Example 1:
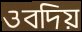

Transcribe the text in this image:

ওবদিয়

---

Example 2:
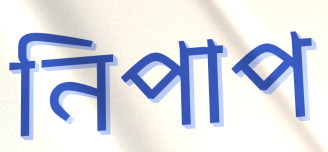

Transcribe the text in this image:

নিপাপ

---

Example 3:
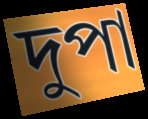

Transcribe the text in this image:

দুপা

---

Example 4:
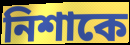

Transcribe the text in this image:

নিশাকে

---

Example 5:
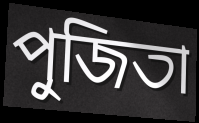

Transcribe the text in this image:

পুজিতা